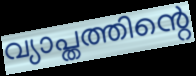
വ്യാപ്തത്തിന്റെ